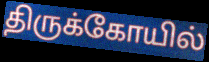
திருக்கோயில்